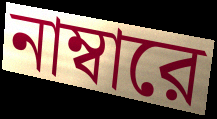
নাম্বারে